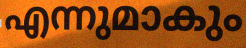
എന്നുമാകും